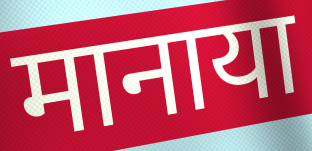
मानाया